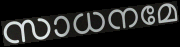
സാധനമേ